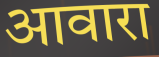
आवारा